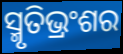
ସ୍ମୃତିଭ୍ରଂଶର